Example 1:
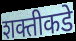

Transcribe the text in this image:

शक्तीकडे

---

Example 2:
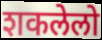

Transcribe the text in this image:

शकलेलो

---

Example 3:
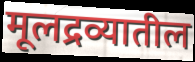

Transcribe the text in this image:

मूलद्रव्यातील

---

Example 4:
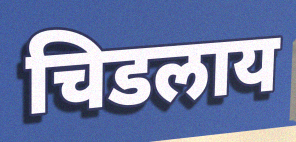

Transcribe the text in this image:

चिडलाय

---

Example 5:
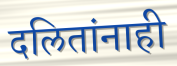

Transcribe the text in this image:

दलितांनाही